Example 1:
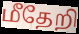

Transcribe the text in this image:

மீதேறி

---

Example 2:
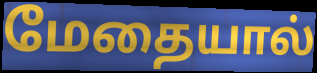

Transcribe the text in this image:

மேதையால்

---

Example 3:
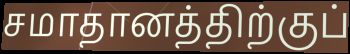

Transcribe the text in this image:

சமாதானத்திற்குப்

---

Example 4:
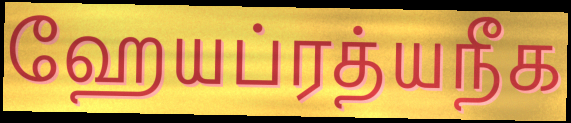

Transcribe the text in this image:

ஹேயப்ரத்யநீக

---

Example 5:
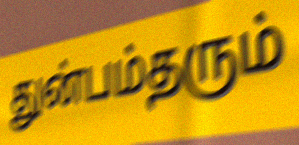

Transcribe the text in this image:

துன்பம்தரும்